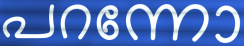
പറന്നോ